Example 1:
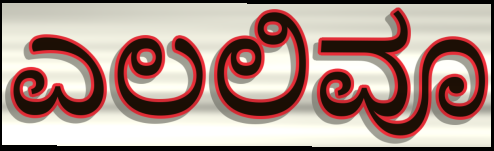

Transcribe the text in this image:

ಎಲಲಿವೂ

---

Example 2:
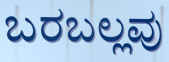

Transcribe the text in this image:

ಬರಬಲ್ಲವು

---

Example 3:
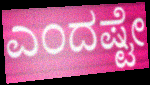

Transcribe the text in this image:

ಎಂದಷ್ಟೇ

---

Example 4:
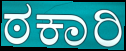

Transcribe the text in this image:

ಠಕಾರಿ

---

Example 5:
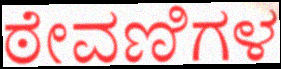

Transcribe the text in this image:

ಠೇವಣಿಗಳ